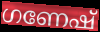
ഗണേഷ്